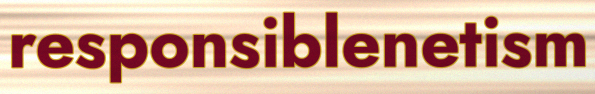
responsiblenetism